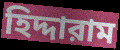
হিদ্দারাম